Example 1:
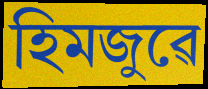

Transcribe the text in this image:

হিমজুৱে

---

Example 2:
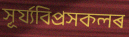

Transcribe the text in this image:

সূৰ্য্যবিপ্ৰসকলৰ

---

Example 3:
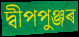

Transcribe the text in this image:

দ্বীপপুঞ্জৰ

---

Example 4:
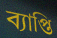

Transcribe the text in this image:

ব্যাপ্তি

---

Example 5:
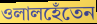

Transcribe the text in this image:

ওলালহেঁতেন